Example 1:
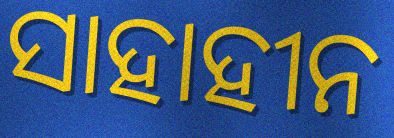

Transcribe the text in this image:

ସାହାହୀନ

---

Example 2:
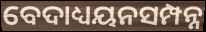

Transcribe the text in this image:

ବେଦାଧ୍ୟୟନସମ୍ପନ୍ନ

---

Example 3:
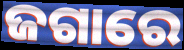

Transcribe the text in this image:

ଜଗାରେ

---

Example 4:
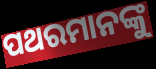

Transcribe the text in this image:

ପଥରମାନଙ୍କୁ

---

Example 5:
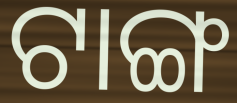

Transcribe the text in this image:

ଟାଙ୍ଗ